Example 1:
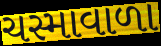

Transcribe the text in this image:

ચસ્માવાળા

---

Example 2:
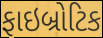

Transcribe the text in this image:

ફાઇબ્રોટિક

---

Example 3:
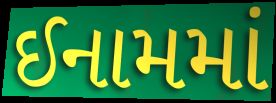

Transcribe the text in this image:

ઈનામમાં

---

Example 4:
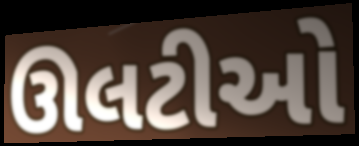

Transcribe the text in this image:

ઊલટીઓ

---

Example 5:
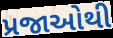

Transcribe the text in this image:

પ્રજાઓથી